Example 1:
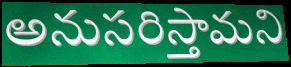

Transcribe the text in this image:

అనుసరిస్తామని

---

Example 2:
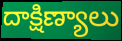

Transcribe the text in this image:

దాక్షిణ్యాలు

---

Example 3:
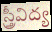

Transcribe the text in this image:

స్త్రీవిద్య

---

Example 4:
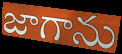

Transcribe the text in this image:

జాగాను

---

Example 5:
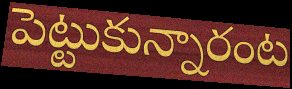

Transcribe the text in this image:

పెట్టుకున్నారంట